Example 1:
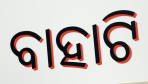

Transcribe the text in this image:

ବାହାଟି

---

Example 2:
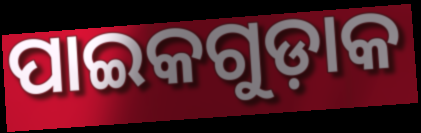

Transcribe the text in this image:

ପାଇକଗୁଡ଼ାକ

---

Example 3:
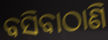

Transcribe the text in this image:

ବସିବାଠାଣି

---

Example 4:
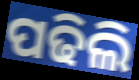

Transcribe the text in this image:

ପଢିଲି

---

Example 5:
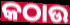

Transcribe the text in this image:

କଠାଉ